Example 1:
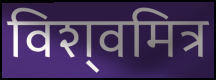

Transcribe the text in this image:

विश्वमित्र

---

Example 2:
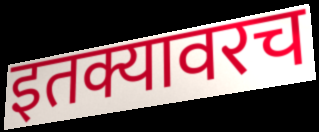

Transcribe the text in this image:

इतक्यावरच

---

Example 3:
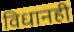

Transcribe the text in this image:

विधानही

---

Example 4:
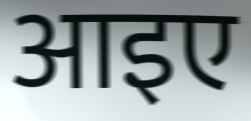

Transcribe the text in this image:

आइए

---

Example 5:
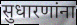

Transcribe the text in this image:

सुधारणांना